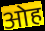
ओह